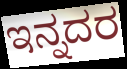
ಇನ್ನದರ